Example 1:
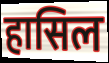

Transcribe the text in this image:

हासिल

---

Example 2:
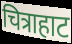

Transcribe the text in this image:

चित्राहाट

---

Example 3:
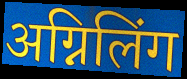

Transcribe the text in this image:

अग्निलिंग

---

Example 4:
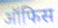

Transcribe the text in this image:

ऑफिस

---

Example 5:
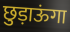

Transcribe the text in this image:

छुड़ाऊंगा